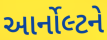
આર્નોલ્ટને